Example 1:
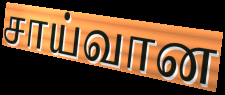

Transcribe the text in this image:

சாய்வான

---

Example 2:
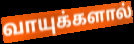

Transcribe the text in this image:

வாயுக்களால்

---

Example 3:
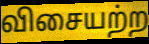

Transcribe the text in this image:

விசையற்ற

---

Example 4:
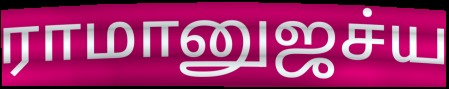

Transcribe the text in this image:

ராமானுஜச்ய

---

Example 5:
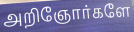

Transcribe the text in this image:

அறிஞோர்களே